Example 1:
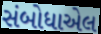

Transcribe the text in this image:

સંબોધાએલ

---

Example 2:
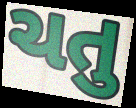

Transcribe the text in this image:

ચતુ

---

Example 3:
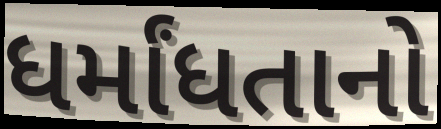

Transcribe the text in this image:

ધર્માંધતાનો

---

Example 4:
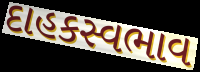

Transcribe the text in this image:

દાહકસ્વભાવ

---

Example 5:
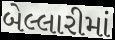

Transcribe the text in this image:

બેલ્લારીમાં